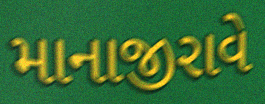
માનાજીરાવે